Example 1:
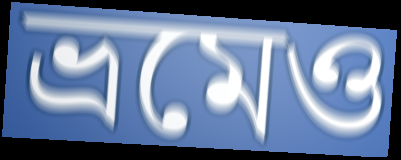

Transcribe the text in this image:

ভ্রমেও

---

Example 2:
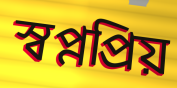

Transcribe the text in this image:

স্বপ্নপ্রিয়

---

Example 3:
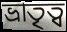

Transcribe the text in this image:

ভ্রাতৃত্ব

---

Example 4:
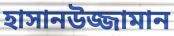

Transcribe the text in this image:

হাসানউজ্জামান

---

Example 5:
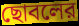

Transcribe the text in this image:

ছোবলের